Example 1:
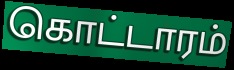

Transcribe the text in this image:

கொட்டாரம்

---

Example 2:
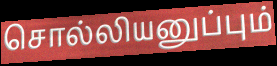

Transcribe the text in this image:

சொல்லியனுப்பும்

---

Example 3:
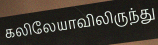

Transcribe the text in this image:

கலிலேயாவிலிருந்து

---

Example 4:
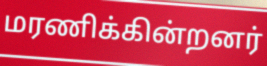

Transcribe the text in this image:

மரணிக்கின்றனர்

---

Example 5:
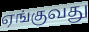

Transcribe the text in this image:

ஏங்குவது